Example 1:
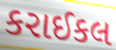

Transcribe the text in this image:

કરાઈકલ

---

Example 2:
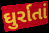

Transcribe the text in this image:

ઘુર્રાતાં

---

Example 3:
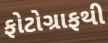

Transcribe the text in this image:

ફોટોગ્રાફથી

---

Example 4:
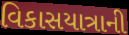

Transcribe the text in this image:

વિકાસયાત્રાની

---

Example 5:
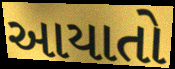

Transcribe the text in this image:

આયાતો